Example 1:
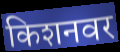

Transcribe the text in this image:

किशनवर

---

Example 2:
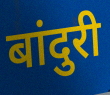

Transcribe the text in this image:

बांदुरी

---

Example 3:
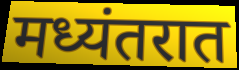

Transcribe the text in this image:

मध्यंतरात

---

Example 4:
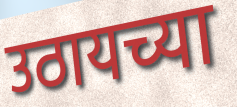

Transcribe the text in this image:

उठायच्या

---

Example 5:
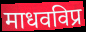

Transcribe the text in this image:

माधवविप्र